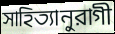
সাহিত্যানুরাগী